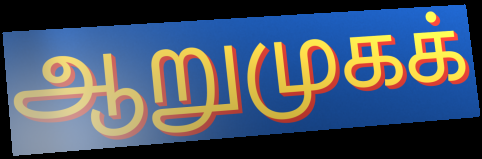
ஆறுமுகக்